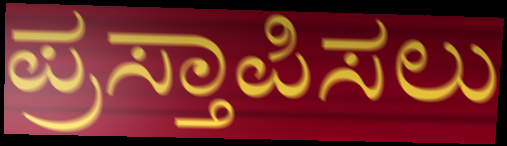
ಪ್ರಸ್ತಾಪಿಸಲು